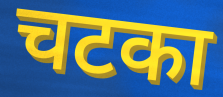
चटका